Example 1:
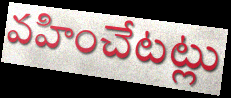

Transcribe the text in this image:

వహించేటట్లు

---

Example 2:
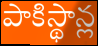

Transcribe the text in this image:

పాకిస్థాన్ల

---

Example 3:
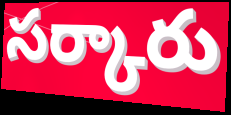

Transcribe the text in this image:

సర్కారు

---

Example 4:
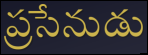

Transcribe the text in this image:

ప్రసేనుడు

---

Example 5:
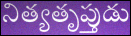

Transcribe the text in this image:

నిత్యతృప్తుడు